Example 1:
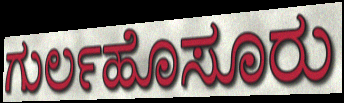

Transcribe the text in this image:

ಗುರ್ಲಹೊಸೂರು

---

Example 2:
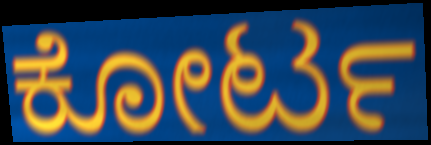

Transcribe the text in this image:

ಕೋರ್ಟ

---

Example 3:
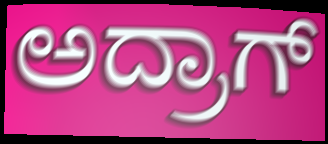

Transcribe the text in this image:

ಅದ್ರಾಗ್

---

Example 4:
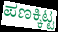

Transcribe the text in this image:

ಪಣಕ್ಕಿಟ್ಟ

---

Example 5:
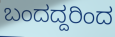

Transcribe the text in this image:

ಬಂದದ್ದರಿಂದ